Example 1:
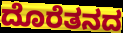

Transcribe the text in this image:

ದೊರೆತನದ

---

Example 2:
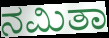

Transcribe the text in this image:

ನಮಿತಾ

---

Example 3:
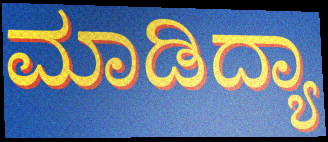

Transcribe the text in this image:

ಮಾಡಿದ್ಯಾ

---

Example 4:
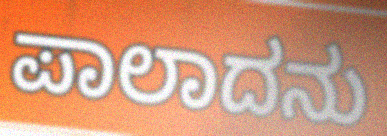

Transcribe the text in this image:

ಪಾಲಾದನು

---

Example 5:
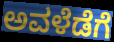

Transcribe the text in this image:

ಅವಳೆಡೆಗೆ